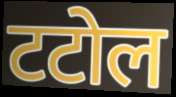
टटोल